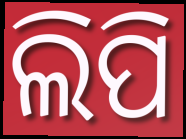
ଲିପି